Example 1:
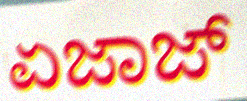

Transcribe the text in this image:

ಏಜಾಜ್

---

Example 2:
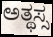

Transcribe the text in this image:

ಅತ್ಥಸ್ಸ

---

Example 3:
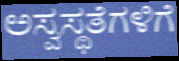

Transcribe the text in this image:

ಅಸ್ವಸ್ಥತೆಗಳಿಗೆ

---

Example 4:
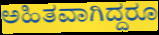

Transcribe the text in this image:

ಅಹಿತವಾಗಿದ್ದರೂ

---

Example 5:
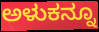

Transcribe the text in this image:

ಅಳುಕನ್ನೂ